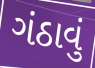
ગંઠાવું